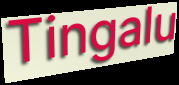
Tingalu